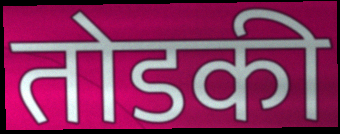
तोडकी